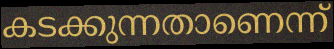
കടക്കുന്നതാണെന്ന്